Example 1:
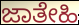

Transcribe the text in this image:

ಜಾತೇಹಿ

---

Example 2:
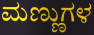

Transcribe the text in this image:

ಮಣ್ಣುಗಳ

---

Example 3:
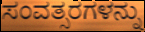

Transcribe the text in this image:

ಸಂವತ್ಸರಗಳನ್ನು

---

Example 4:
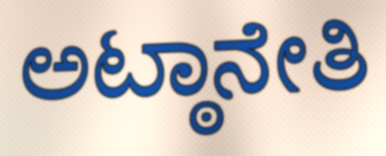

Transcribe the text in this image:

ಅಟ್ಠಾನೇತಿ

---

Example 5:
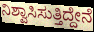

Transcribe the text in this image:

ನಿಶ್ವಾಸಿಸುತ್ತಿದ್ದೇನೆ